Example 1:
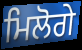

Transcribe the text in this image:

ਮਿਲੋਗੇ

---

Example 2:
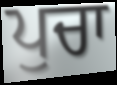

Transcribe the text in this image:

ਪੁਚਾ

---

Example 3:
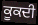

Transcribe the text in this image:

ਕੂਕਦੀ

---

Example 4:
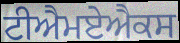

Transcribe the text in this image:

ਟੀਐਮਏਐਕਸ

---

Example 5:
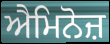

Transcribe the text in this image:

ਐਮਿਨੋਜ਼